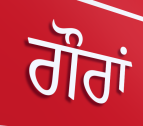
ਗੌਰਾਂ